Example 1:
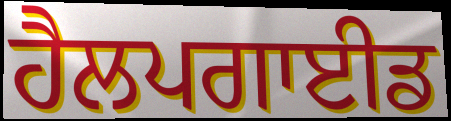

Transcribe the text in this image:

ਹੈਲਪਗਾਈਡ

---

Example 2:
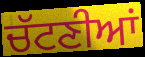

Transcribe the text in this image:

ਚੱਟਣੀਆਂ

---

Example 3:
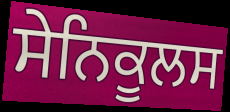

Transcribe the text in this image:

ਸੇਨਿਕੂਲਸ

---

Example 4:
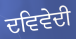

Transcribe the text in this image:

ਦਵਿਵੇਦੀ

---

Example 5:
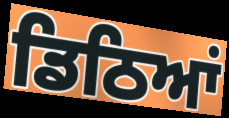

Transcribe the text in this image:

ਡਿਠਿਆਂ